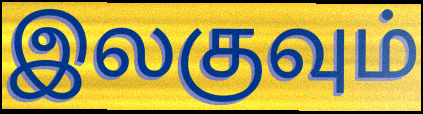
இலகுவும்